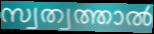
സ്വത്വത്താൽ